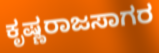
ಕೃಷ್ಣರಾಜಸಾಗರ